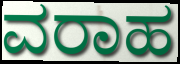
ವರಾಹ